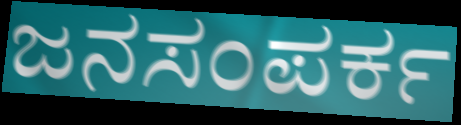
ಜನಸಂಪರ್ಕ